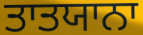
ਤਾਤਯਾਨਾ